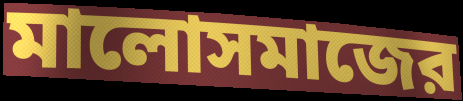
মালোসমাজের